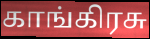
காங்கிரசு